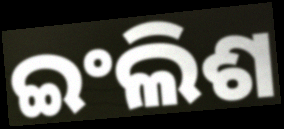
ଇଂଲିଶ